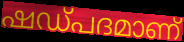
ഷഡ്പദമാണ്